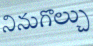
నినుగొల్చు